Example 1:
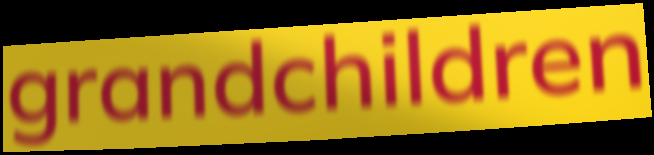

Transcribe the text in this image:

grandchildren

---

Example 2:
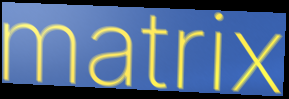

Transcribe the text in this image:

matrix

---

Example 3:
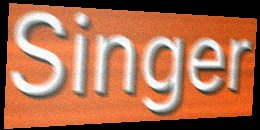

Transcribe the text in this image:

Singer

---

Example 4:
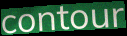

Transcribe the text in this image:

contour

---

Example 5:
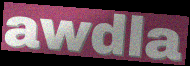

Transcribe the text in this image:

awdla